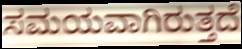
ಸಮಯವಾಗಿರುತ್ತದೆ